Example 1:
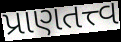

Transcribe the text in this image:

પ્રાણતત્ત્વ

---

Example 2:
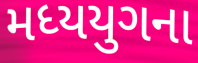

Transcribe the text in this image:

મધ્યયુગના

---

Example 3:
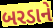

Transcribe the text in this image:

બરડાને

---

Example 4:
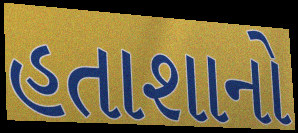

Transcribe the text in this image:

હતાશાનો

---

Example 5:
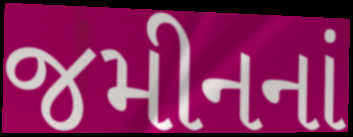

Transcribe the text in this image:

જમીનનાં